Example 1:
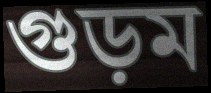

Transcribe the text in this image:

গুড়ম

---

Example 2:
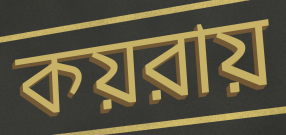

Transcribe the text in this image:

কয়রায়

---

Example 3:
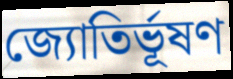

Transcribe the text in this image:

জ্যোতির্ভূষণ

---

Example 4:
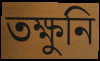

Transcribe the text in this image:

তক্ষুনি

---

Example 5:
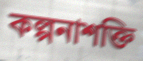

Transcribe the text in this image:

কল্পনাশক্তি